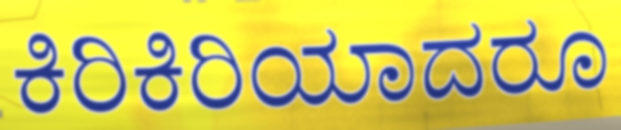
ಕಿರಿಕಿರಿಯಾದರೂ